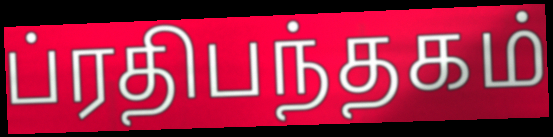
ப்ரதிபந்தகம்